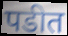
पडीत